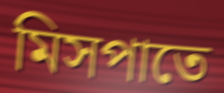
মিসপাতে